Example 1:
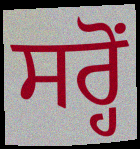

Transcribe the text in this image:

ਸਰ੍ਹੋਂ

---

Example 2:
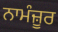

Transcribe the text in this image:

ਨਾਮੰਜ਼ੂਰ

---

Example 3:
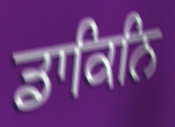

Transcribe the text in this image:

ਡਾਕਿਨਿ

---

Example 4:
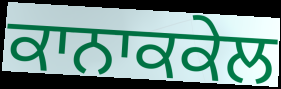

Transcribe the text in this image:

ਕਾਨਾਕਕੇਲ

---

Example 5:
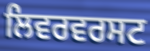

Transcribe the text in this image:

ਲਿਵਰਵਰਸਟ